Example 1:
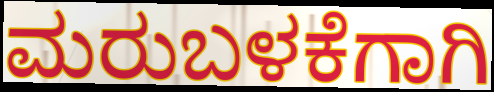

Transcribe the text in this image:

ಮರುಬಳಕೆಗಾಗಿ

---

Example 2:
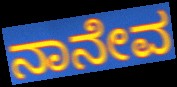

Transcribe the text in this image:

ನಾನೇವ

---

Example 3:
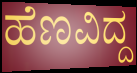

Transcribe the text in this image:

ಹೆಣವಿದ್ದ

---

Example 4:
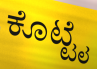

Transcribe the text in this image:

ಕೊಟ್ಟೈ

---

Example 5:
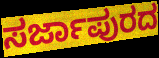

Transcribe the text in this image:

ಸರ್ಜಾಪುರದ